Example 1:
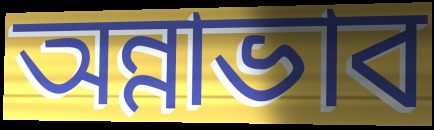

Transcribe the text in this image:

অন্নাভাব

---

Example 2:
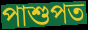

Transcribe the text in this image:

পাশুপত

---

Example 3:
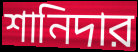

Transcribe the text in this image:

শানিদার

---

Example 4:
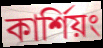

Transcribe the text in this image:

কার্শিয়ং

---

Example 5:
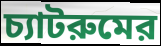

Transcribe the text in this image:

চ্যাটরুমের